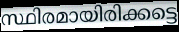
സ്ഥിരമായിരിക്കട്ടെ